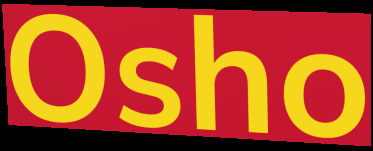
Osho